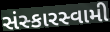
સંસ્કારસ્વામી